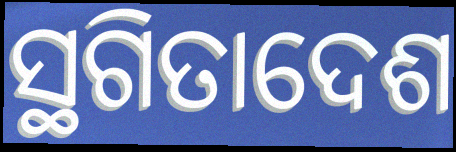
ସ୍ଥଗିତାଦେଶ